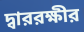
দ্বাররক্ষীর